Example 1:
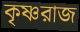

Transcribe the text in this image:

কৃষ্ণরাজ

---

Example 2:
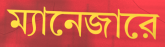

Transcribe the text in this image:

ম্যানেজারে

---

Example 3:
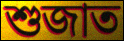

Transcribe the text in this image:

শুজাত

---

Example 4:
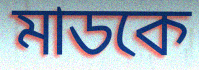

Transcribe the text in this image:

মাডকে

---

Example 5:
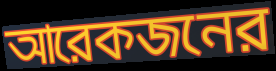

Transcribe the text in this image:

আরেকজনের